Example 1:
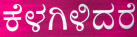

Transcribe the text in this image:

ಕೆಳಗಿಳಿದರೆ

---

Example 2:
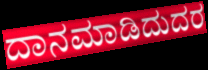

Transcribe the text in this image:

ದಾನಮಾಡಿದುದರ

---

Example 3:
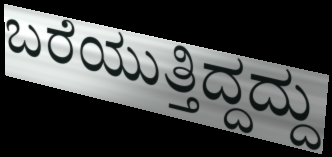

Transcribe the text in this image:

ಬರೆಯುತ್ತಿದ್ದದ್ದು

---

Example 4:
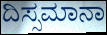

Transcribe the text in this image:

ದಿಸ್ಸಮಾನಾ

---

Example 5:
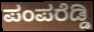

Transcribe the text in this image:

ಪಂಪರೆಡ್ಡಿ